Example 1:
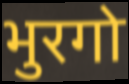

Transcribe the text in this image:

भुरगो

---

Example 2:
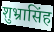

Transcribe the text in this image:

शुभ्रासिंह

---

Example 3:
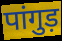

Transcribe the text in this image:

पांगुड़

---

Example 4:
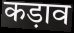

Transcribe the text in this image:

कड़ाव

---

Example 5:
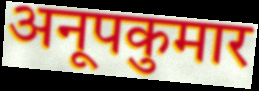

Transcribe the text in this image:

अनूपकुमार